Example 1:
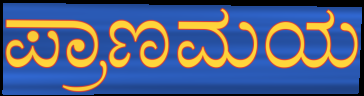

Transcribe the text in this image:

ಪ್ರಾಣಮಯ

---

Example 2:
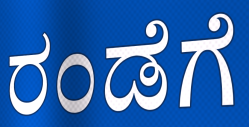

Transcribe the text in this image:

ರಂಡೆಗೆ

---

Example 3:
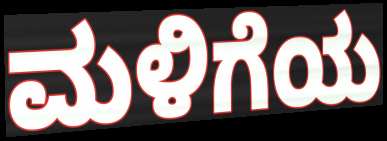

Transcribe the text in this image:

ಮಳಿಗೆಯ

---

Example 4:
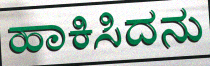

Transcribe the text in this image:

ಹಾಕಿಸಿದನು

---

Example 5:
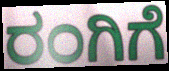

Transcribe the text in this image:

ರಂಗಿಗೆ